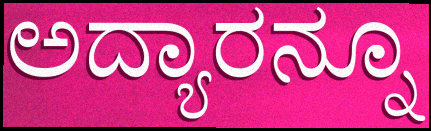
ಅದ್ಯಾರನ್ನೂ